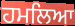
ਹਮਲਿਆ